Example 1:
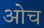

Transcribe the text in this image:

ओच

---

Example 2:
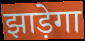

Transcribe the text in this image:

झाड़ेगा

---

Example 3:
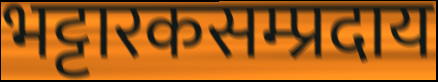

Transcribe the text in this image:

भट्टारकसम्प्रदाय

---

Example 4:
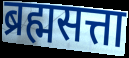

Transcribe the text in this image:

ब्रह्मसत्ता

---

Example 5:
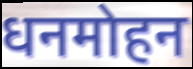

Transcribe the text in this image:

धनमोहन